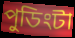
পুডিংটা